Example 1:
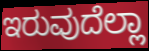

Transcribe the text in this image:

ಇರುವುದೆಲ್ಲಾ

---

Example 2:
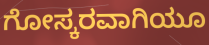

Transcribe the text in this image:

ಗೋಸ್ಕರವಾಗಿಯೂ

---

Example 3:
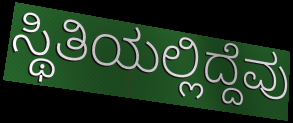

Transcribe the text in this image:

ಸ್ಥಿತಿಯಲ್ಲಿದ್ದೆವು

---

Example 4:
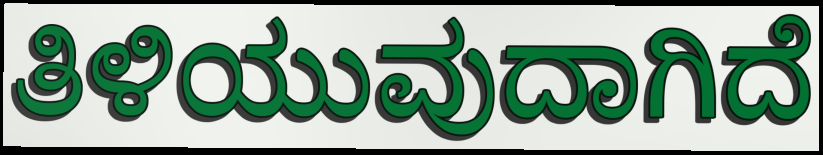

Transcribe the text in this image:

ತಿಳಿಯುವುದಾಗಿದೆ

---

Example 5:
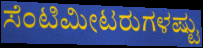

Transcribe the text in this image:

ಸೆಂಟಿಮೀಟರುಗಳಷ್ಟು